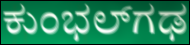
ಕುಂಭಲ್‌ಗಢ